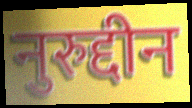
नुरुद्दीन